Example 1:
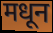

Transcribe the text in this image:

मधून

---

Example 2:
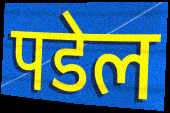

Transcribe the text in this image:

पडेल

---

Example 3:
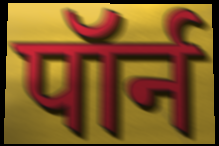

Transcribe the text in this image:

पॉर्न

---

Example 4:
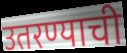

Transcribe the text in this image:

उतरण्याची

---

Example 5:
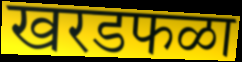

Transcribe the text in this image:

खरडफळा